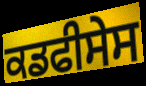
ਕਡਫੀਸੇਸ